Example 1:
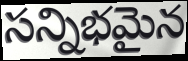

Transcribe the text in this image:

సన్నిభమైన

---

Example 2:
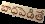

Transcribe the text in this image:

బాధపెడితే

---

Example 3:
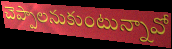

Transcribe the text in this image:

చెప్పాలనుకుంటున్నావో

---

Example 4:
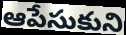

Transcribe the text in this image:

ఆపేసుకుని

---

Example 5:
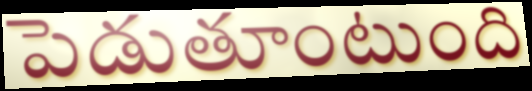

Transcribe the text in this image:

పెడుతూంటుంది